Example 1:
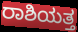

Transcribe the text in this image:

ರಾಶಿಯತ್ತ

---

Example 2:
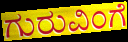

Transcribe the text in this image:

ಗುರುವಿಂಗೆ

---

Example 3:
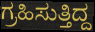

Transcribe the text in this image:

ಗ್ರಹಿಸುತ್ತಿದ್ದ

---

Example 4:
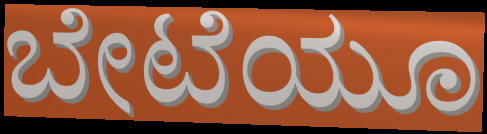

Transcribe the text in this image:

ಬೇಟೆಯೂ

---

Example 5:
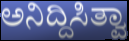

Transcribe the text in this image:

ಅನಿದ್ದಿಸಿತ್ವಾ